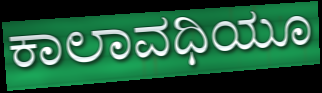
ಕಾಲಾವಧಿಯೂ